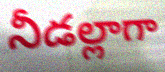
నీడల్లాగా